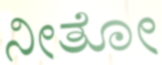
ನೀತೋ